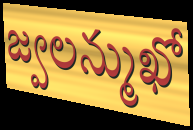
జ్వలన్ముఖో